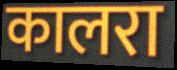
कालरा